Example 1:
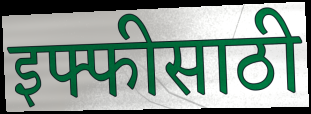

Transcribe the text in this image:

इफ्फीसाठी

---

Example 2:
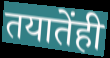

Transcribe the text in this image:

तयातेंही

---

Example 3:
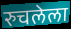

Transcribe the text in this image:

रुचलेला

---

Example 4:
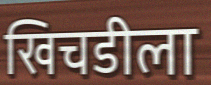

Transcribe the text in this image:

खिचडीला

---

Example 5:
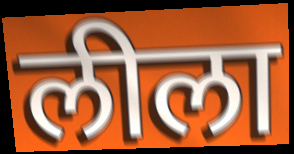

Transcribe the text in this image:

लीला